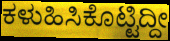
ಕಳುಹಿಸಿಕೊಟ್ಟಿದ್ದೀ